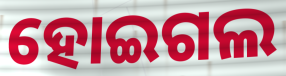
ହୋଇଗଲ